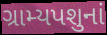
ગ્રામ્યપશુનાં